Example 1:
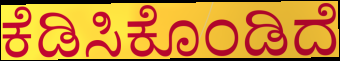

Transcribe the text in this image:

ಕೆಡಿಸಿಕೊಂಡಿದೆ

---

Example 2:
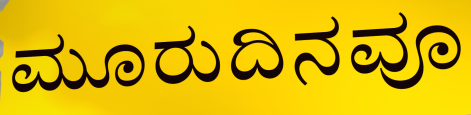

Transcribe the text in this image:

ಮೂರುದಿನವೂ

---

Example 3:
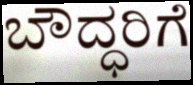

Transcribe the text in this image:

ಬೌದ್ಧರಿಗೆ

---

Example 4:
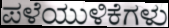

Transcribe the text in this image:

ಪಳೆಯುಳಿಕೆಗಳು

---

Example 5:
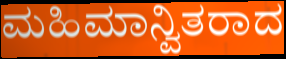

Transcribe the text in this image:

ಮಹಿಮಾನ್ವಿತರಾದ